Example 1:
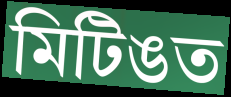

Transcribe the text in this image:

মিটিঙত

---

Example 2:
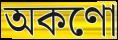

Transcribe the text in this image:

অকণো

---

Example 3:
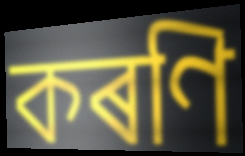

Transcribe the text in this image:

কৰণি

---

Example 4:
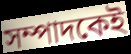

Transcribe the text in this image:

সম্পাদকেই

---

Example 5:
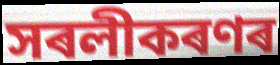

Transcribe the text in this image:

সৰলীকৰণৰ